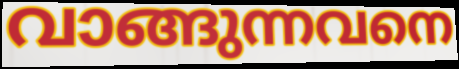
വാങ്ങുന്നവനെ